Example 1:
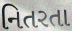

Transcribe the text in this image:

નિતરતા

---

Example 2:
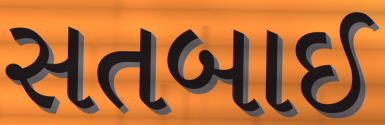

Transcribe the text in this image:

સતબાઈ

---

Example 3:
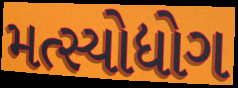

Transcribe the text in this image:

મત્સ્યોદ્યોગ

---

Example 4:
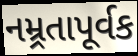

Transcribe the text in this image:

નમ્ર્રતાપૂર્વક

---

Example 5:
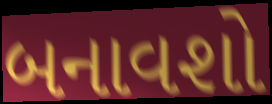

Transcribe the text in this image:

બનાવશો